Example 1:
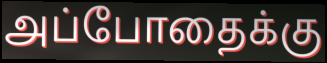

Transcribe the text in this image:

அப்போதைக்கு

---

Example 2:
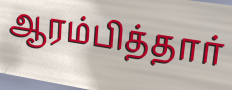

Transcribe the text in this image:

ஆரம்பித்தார்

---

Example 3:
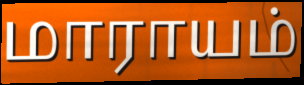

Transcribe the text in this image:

மாராயம்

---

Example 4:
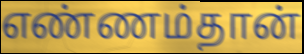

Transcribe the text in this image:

எண்ணம்தான்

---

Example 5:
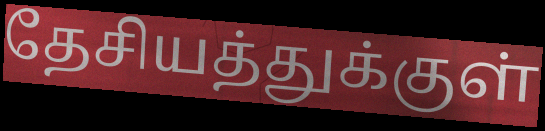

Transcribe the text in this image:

தேசியத்துக்குள்